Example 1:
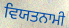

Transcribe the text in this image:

ਵਿਯਤਨਾਮੀ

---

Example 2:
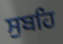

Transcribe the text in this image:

ਸੁਬਹਿ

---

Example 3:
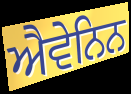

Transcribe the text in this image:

ਐਵੇਨਿਨ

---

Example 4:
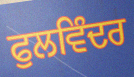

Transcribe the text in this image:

ਫੁਲਵਿੰਦਰ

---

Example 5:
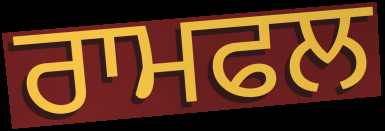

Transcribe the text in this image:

ਰਾਮਫਲ